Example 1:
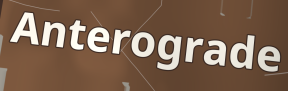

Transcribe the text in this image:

Anterograde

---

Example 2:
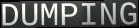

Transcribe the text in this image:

DUMPING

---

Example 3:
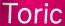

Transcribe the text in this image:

Toric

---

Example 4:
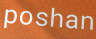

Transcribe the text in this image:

poshan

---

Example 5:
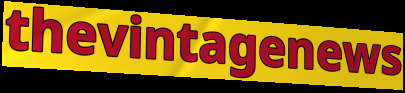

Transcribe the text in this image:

thevintagenews